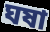
ঘষা